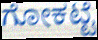
ಗೋಕಟ್ಟೆ